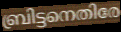
ബ്രിട്ടനെതിരേ